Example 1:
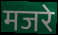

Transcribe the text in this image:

मजरे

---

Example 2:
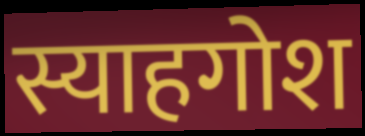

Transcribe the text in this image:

स्याहगोश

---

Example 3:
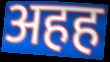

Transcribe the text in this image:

अहह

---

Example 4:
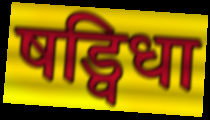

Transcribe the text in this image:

षड्विधा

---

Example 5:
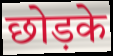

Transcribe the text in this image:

छोड़के